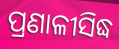
ପ୍ରଣାଳୀସିଦ୍ଧ